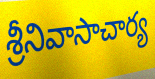
శ్రీనివాసాచార్య